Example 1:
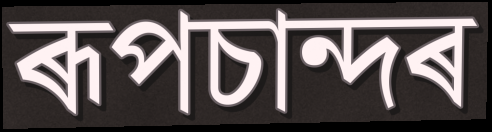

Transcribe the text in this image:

ৰূপচান্দৰ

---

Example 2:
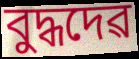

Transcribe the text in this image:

বুদ্ধদেৱ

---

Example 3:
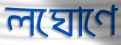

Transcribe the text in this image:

লঘোণে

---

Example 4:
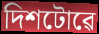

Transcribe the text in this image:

দিশটোৱে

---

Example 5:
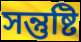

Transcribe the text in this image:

সন্তুষ্টি